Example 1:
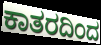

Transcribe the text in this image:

ಕಾತರದಿಂದ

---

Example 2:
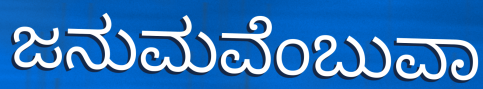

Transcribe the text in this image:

ಜನುಮವೆಂಬುವಾ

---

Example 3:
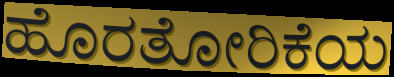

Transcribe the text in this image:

ಹೊರತೋರಿಕೆಯ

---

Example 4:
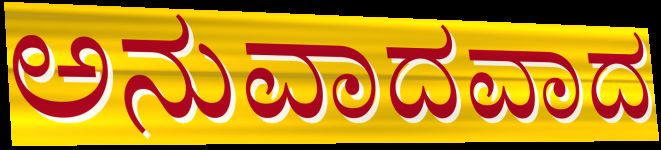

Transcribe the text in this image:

ಅನುವಾದವಾದ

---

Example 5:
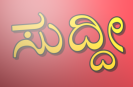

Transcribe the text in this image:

ಸುದ್ದೀ